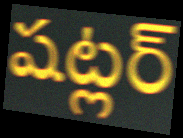
షట్లర్